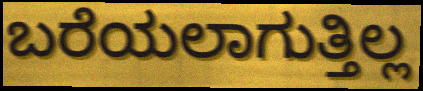
ಬರೆಯಲಾಗುತ್ತಿಲ್ಲ